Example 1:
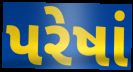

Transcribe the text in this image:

પરેષાં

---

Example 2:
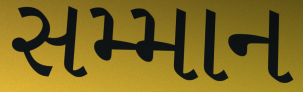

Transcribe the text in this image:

સમ્માન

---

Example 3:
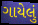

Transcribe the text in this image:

ગાયેલું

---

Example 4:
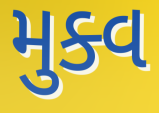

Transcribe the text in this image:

મુક્વ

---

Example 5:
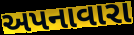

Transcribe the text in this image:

અપનાવારા